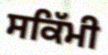
ਸਕਿੱਮੀ